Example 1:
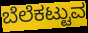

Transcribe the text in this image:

ಬೆಲೆಕಟ್ಟುವ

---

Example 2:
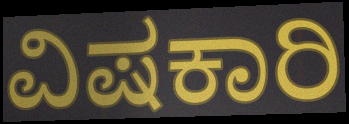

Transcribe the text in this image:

ವಿಷಕಾರಿ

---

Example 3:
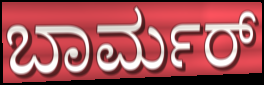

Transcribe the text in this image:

ಬಾರ್ಮರ್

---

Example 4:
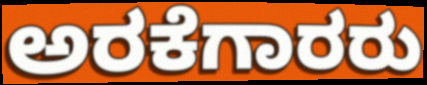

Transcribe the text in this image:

ಅರಕೆಗಾರರು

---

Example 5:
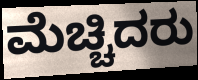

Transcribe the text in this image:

ಮೆಚ್ಚಿದರು